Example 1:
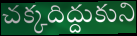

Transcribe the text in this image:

చక్కదిద్దుకుని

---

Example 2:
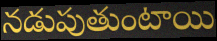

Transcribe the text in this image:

నడుపుతుంటాయి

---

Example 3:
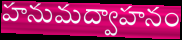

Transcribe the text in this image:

హనుమద్వాహనం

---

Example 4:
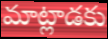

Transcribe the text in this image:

మాట్లాడకు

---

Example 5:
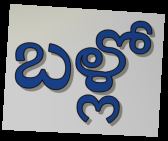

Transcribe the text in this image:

బళ్లో